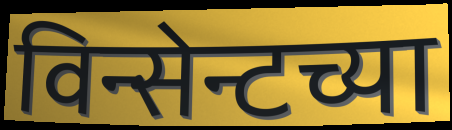
विन्सेन्टच्या